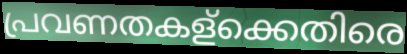
പ്രവണതകള്ക്കെതിരെ